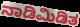
ನಾಡಿಮಿಡಿತ